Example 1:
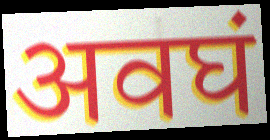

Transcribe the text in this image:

अवघं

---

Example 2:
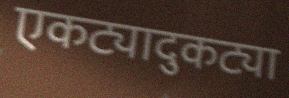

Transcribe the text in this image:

एकट्यादुकट्या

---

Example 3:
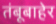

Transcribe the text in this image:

तंबूबाहेर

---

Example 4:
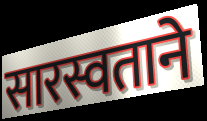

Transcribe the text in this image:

सारस्वताने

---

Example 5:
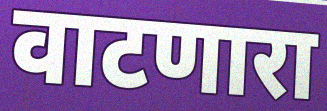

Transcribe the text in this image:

वाटणारा